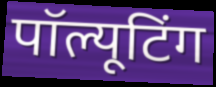
पॉल्यूटिंग